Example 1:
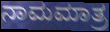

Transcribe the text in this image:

ನಾಮಮಾತ್ರ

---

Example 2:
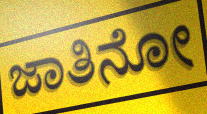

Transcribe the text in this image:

ಜಾತಿನೋ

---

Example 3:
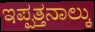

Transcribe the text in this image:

ಇಪ್ಪತ್ತನಾಲ್ಕು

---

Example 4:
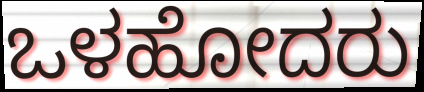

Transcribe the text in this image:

ಒಳಹೋದರು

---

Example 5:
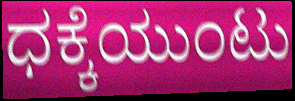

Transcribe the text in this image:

ಧಕ್ಕೆಯುಂಟು